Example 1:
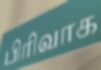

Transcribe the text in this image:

பிரிவாக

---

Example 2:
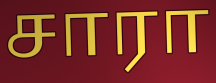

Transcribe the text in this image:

சாரா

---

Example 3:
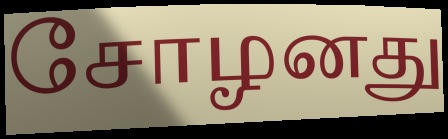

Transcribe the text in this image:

சோழனது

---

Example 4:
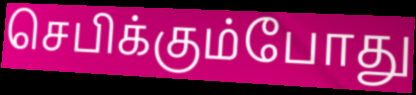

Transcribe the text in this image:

செபிக்கும்போது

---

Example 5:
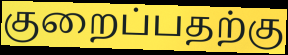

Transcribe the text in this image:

குறைப்பதற்கு